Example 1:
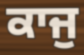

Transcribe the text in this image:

ਕਾਜੁ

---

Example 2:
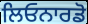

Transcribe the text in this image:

ਲਿਓਨਾਰਡੋ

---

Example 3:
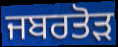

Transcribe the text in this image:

ਜਬਰਤੋੜ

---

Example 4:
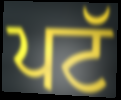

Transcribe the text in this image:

ਪਟੱ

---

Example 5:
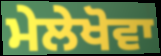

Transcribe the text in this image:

ਮੇਲੇਖੋਵਾ